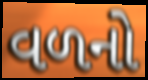
વળનો